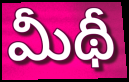
మీథీ